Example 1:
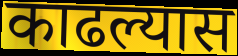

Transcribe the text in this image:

काढल्यास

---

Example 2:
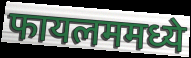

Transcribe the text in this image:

फायलममध्ये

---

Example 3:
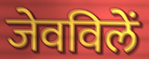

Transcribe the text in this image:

जेवविलें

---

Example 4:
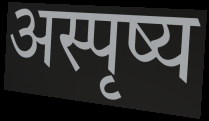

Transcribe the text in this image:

अस्पृष्य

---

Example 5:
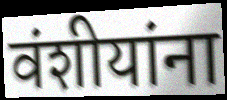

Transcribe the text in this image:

वंशीयांना